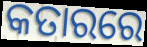
କତାରରେ